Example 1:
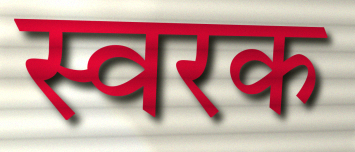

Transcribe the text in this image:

स्वरक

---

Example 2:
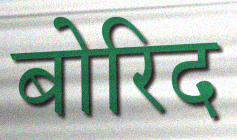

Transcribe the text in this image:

बोरिद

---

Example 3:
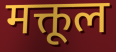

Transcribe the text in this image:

मक्तूल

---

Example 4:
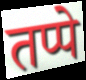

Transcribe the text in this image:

तप्पे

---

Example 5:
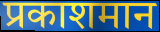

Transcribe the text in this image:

प्रकाशमान